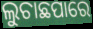
ଲୁଚାଛପାରେ